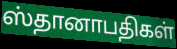
ஸ்தானாபதிகள்